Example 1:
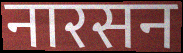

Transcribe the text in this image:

नारसन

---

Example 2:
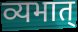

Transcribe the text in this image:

व्यभात्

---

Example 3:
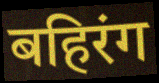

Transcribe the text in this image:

बहिरंग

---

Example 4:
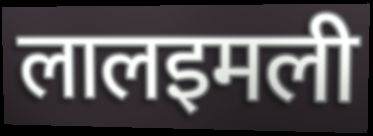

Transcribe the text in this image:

लालइमली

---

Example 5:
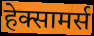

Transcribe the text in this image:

हेक्सामर्स